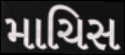
માચિસ